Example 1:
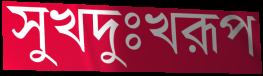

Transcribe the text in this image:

সুখদুঃখরূপ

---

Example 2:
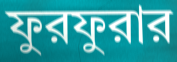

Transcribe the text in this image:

ফুরফুরার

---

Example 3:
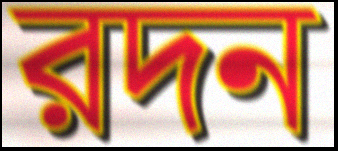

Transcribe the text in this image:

রদন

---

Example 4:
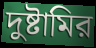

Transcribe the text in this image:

দুষ্টামির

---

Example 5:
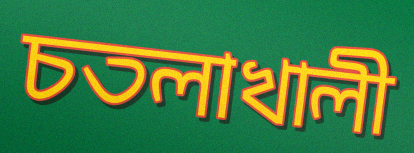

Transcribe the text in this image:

চতলাখালী